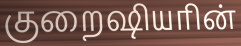
குறைஷியரின்